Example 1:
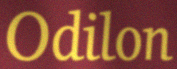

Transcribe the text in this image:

Odilon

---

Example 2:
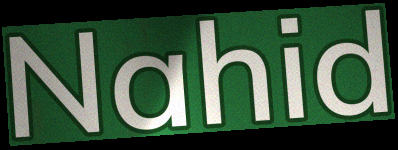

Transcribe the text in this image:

Nahid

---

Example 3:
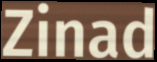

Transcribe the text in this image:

Zinad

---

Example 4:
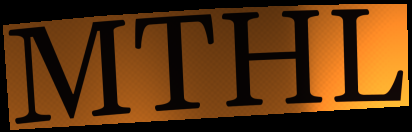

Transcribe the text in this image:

MTHL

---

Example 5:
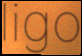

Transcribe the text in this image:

ligo